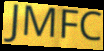
JMFC